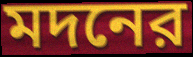
মদনের